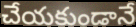
చేయకుండానే